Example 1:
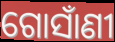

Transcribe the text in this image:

ଗୋସାଁଣୀ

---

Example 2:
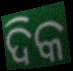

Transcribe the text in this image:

ଦିକ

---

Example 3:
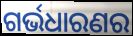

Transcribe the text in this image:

ଗର୍ଭଧାରଣର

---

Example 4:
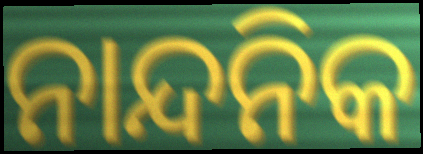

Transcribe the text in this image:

ନାନ୍ଦନିକ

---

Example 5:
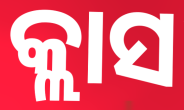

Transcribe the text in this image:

କ୍ଲାସ